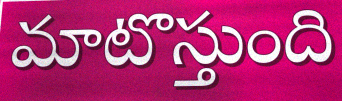
మాటొస్తుంది